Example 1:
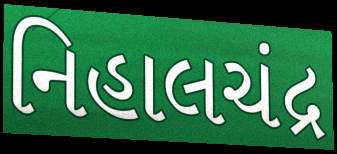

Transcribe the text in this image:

નિહાલચંદ્ર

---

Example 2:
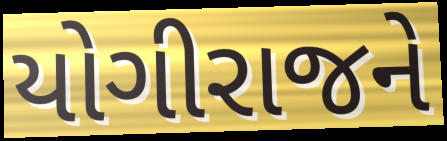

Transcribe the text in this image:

યોગીરાજને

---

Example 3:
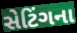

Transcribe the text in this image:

સેટિંગના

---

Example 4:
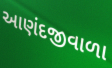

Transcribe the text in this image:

આણંદજીવાળા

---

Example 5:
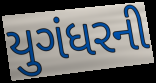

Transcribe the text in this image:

યુગંધરની